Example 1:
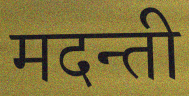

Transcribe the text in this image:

मदन्ती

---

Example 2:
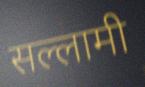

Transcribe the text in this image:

सल्लामी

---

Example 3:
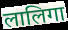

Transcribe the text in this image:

लालिगा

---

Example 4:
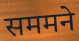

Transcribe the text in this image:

सममने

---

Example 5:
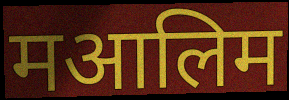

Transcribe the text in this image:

मआलिम